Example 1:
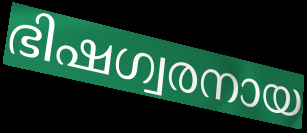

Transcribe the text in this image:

ഭിഷഗ്വരനായ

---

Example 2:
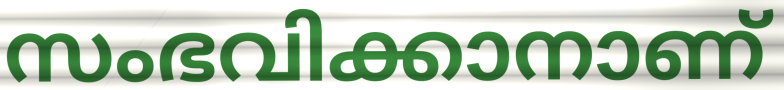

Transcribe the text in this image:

സംഭവിക്കാനാണ്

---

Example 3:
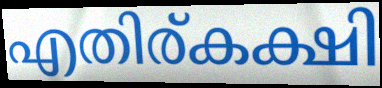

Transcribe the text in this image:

എതിര്കക്ഷി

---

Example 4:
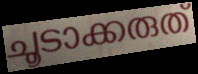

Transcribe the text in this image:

ചൂടാക്കരുത്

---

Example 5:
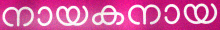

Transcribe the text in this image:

നായകനായ